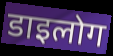
डाइलोग